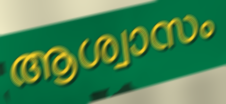
ആശ്വാസം